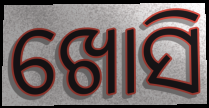
ଖୋସି